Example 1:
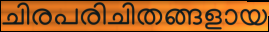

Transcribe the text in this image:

ചിരപരിചിതങ്ങളായ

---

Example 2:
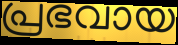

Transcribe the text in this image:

പ്രഭവായ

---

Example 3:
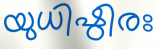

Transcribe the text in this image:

യുധിഷ്ഠിരഃ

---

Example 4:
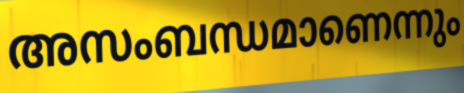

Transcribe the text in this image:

അസംബന്ധമാണെന്നും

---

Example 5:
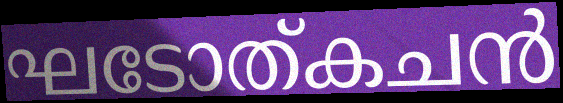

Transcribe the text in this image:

ഘടോത്കചൻ